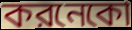
করনেকো